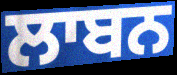
ਲਾਬਨ